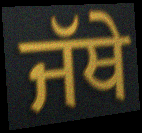
ਜੱਥੇ